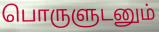
பொருளுடனும்